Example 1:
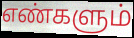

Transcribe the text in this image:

எண்களும்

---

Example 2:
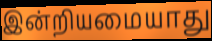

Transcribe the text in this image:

இன்றியமையாது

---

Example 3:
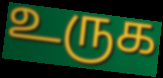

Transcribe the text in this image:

உருக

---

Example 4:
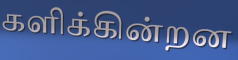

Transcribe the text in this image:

களிக்கின்றன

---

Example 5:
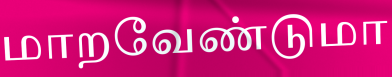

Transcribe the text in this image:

மாறவேண்டுமா